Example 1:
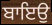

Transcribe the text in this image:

ਬਾਇਉ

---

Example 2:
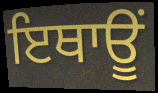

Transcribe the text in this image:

ਇਥਾਊਂ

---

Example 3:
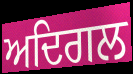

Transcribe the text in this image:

ਅਦਿਗਲ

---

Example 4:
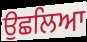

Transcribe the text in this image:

ਉਛਲਿਆ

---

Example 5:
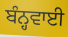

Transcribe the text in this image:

ਬੰਨ੍ਹਵਾਈ